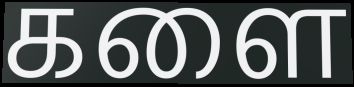
களை